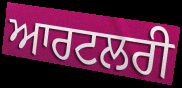
ਆਰਟਲਰੀ